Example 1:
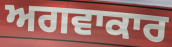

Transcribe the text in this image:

ਅਗਵਾਕਾਰ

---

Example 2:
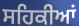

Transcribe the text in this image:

ਸਹਿਕੀਆਂ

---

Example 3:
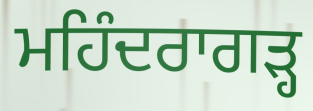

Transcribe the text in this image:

ਮਹਿੰਦਰਾਗੜ੍ਹ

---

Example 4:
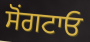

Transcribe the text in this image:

ਸੋਂਗਟਾਓ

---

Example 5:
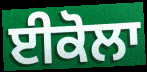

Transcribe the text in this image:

ਈਕੋਲਾ